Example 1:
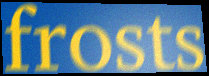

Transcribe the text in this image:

frosts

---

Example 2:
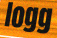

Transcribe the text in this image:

logg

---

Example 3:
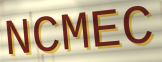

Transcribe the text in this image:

NCMEC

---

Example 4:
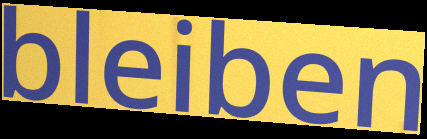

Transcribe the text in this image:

bleiben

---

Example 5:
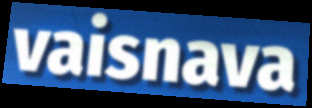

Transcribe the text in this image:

vaisnava